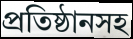
প্রতিষ্ঠানসহ